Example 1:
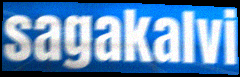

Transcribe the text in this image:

sagakalvi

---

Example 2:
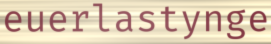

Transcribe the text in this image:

euerlastynge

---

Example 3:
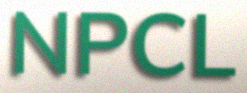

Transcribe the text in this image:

NPCL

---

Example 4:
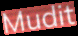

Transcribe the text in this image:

Mudit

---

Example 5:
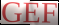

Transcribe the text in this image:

GEF